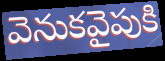
వెనుకవైపుకి